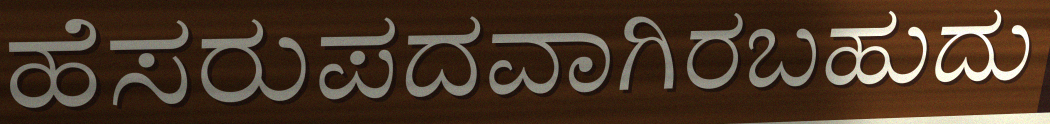
ಹೆಸರುಪದವಾಗಿರಬಹುದು